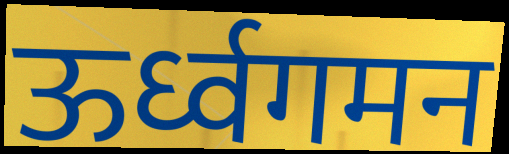
ऊर्ध्वगमन